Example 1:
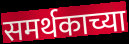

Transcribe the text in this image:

समर्थकाच्या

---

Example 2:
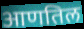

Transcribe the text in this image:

आणतिल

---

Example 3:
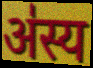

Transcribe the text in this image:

अ॑स्य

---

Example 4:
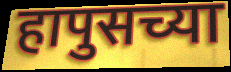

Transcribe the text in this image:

हापुसच्या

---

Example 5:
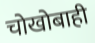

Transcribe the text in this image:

चोखोबाही